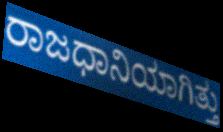
ರಾಜಧಾನಿಯಾಗಿತ್ತು